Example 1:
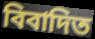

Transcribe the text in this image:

বিবাদিত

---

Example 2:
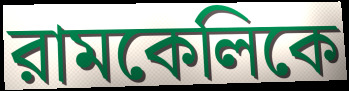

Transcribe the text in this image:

রামকেলিকে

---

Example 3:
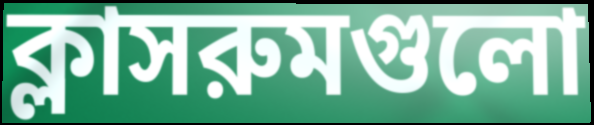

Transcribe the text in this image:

ক্লাসরুমগুলো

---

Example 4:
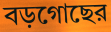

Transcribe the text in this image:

বড়গোছের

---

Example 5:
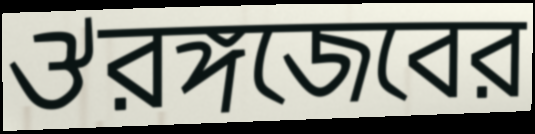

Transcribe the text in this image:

ঔরঙ্গজেবের